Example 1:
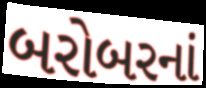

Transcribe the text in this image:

બરોબરનાં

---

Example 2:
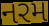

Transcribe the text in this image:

નરમ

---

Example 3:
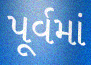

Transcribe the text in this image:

પૂર્વમાં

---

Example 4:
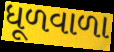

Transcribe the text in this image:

ધૂળવાળા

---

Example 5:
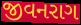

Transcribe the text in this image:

જીવનરાગ